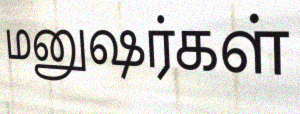
மனுஷர்கள்